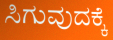
ಸಿಗುವುದಕ್ಕೆ